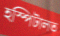
হস্পিটালত